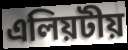
এলিয়টীয়